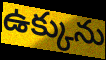
ఉక్కును